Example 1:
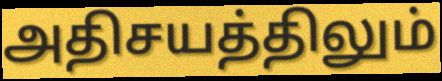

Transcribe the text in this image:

அதிசயத்திலும்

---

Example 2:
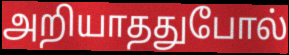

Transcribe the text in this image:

அறியாததுபோல்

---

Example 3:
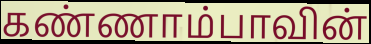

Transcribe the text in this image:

கண்ணாம்பாவின்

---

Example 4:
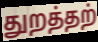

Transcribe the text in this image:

துறத்தற்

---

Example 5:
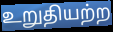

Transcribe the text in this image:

உறுதியற்ற